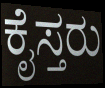
ಕೈಸ್ತರು